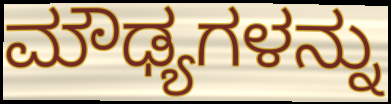
ಮೌಢ್ಯಗಳನ್ನು